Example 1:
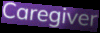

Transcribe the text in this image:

Caregiver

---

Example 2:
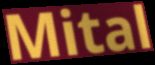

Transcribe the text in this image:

Mital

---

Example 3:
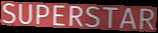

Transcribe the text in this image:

SUPERSTAR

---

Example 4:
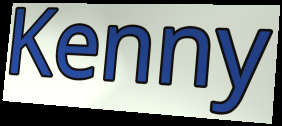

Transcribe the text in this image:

Kenny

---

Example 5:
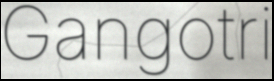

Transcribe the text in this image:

Gangotri